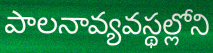
పాలనావ్యవస్థల్లోని